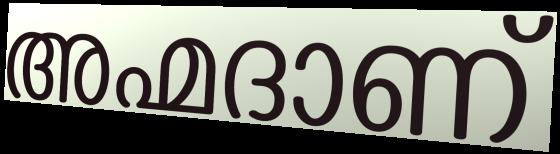
അഹ്മദാണ്